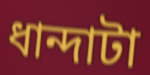
ধান্দাটা